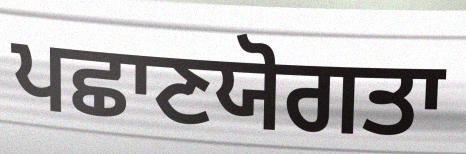
ਪਛਾਣਯੋਗਤਾ